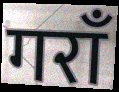
गराँ